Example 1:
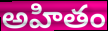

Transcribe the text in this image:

అహితం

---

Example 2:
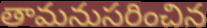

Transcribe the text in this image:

తామనుసరించిన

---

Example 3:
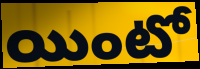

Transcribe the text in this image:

యింటో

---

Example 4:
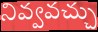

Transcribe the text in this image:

నివ్వవచ్చు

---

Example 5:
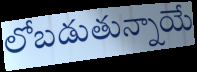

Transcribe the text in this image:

లోబడుతున్నాయే